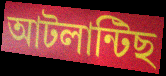
আটলান্টিছ